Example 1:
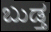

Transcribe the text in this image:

ಬುಡ್ತ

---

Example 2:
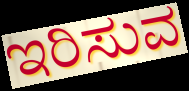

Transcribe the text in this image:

ಇರಿಸುವ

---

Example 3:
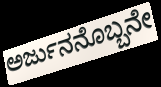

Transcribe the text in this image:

ಅರ್ಜುನನೊಬ್ಬನೇ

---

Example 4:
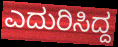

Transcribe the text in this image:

ಎದುರಿಸಿದ್ದ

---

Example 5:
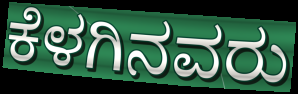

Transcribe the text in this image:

ಕೆಳಗಿನವರು